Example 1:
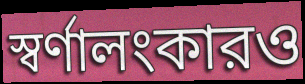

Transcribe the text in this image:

স্বর্ণালংকারও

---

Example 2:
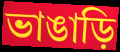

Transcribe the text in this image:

ভাঙাড়ি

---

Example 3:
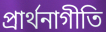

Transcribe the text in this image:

প্রার্থনাগীতি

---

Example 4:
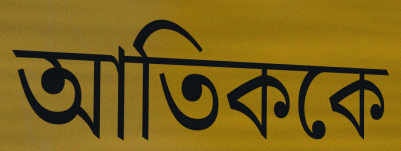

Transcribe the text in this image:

আতিককে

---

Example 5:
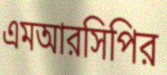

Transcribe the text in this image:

এমআরসিপির